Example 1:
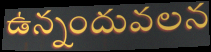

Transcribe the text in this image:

ఉన్నందువలన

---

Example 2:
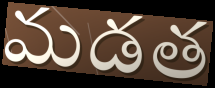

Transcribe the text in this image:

మడత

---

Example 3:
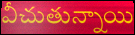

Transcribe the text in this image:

వీచుతున్నాయి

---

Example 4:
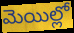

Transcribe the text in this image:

మెయిల్లో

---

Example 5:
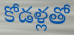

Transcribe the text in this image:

కోడళ్లతో